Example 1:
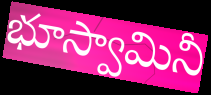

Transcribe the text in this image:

భూస్వామినీ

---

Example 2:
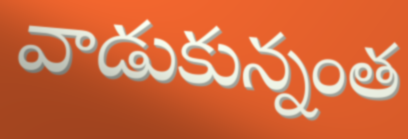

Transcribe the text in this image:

వాడుకున్నంత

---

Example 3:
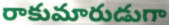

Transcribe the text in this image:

రాకుమారుడుగా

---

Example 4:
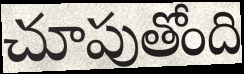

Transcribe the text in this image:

చూపుతోంది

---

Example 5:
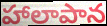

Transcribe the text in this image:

హాలాపాన